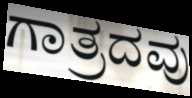
ಗಾತ್ರದವು